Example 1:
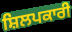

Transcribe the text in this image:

ਸ਼ਿਲਪਕਾਰੀ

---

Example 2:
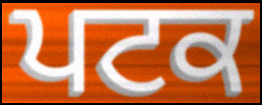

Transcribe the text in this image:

ਪਟਕ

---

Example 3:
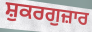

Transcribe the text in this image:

ਸ਼ੁਕਰਗੁਜ਼ਾਰ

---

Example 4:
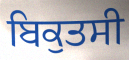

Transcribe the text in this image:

ਬਿਕੁਤਸੀ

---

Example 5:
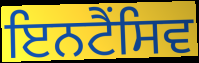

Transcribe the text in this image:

ਇਨਟੈਂਸਿਵ